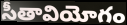
సీతావియోగం